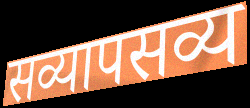
सव्यापसव्य